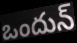
ఒందున్